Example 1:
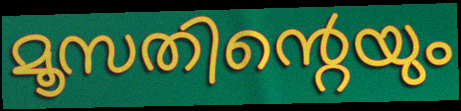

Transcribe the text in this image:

മൂസതിന്റെയും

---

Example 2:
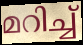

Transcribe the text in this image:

മറിച്ച്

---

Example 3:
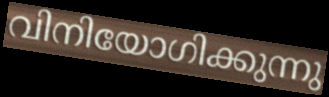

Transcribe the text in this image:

വിനിയോഗിക്കുന്നു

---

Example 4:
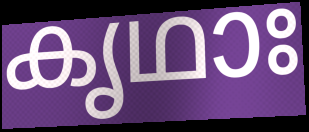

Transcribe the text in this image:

കൃഥാഃ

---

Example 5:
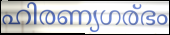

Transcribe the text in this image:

ഹിരണ്യഗര്ഭം